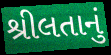
શ્રીલતાનું